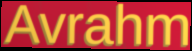
Avrahm